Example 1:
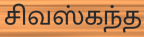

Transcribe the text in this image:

சிவஸ்கந்த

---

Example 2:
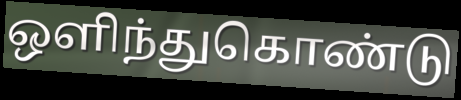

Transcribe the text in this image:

ஒளிந்துகொண்டு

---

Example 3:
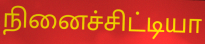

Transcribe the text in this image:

நினைச்சிட்டியா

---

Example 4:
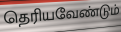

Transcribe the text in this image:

தெரியவேண்டும்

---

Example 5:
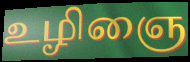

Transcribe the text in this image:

உழிஞை